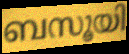
ബസൂയി